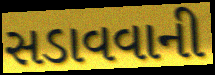
સડાવવાની